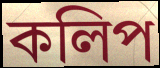
কলিপ